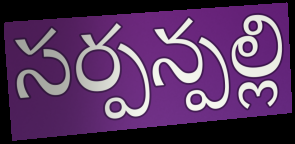
సర్పన్పల్లి